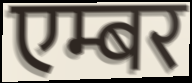
एम्बर